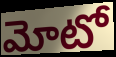
మోటో